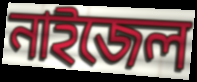
নাইজেল